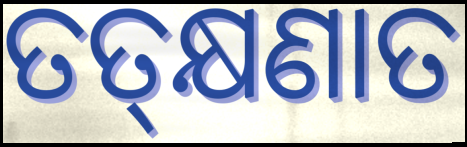
ତତ୍କ୍ଷଣାତ